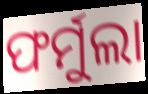
ଫର୍ମୁଲା